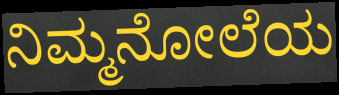
ನಿಮ್ಮನೋಲೆಯ